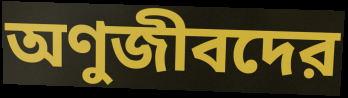
অণুজীবদের